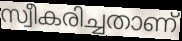
സ്വീകരിച്ചതാണ്